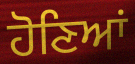
ਹੋਣਿਆਂ